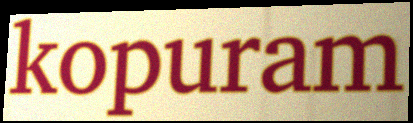
kopuram